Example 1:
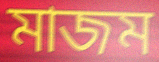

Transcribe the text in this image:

মাজম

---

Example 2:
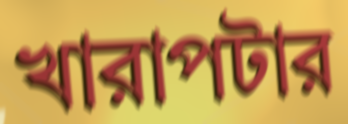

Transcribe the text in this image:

খারাপটার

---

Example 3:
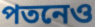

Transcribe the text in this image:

পতনেও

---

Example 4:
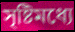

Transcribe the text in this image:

সৃষ্টিমধ্যে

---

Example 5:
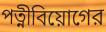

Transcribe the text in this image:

পত্নীবিয়োগের